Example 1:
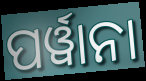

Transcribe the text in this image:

ପର୍ୱାନା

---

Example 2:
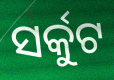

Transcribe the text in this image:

ସର୍କୁଟ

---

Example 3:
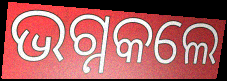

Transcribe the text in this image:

ଭଗ୍ନକଲେ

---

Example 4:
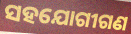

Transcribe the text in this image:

ସହଯୋଗୀଗଣ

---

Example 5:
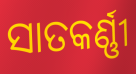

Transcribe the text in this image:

ସାତକର୍ଣ୍ଣୀ